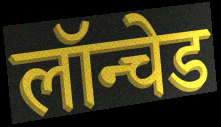
लॉन्चेड